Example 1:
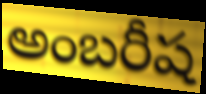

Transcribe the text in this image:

అంబరీష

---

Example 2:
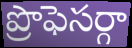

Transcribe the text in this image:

ప్రొఫెసర్గా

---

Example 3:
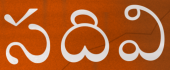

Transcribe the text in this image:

సదివి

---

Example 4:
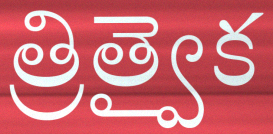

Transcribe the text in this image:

త్రిత్వైక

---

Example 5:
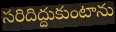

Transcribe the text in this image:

సరిదిద్దుకుంటాను